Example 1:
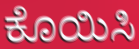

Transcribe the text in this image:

ಕೊಯಿಸಿ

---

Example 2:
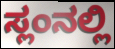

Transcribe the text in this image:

ಸ್ಲಂನಲ್ಲಿ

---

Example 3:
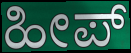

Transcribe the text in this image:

ಹೀಪ್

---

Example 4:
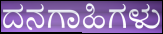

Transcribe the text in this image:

ದನಗಾಹಿಗಳು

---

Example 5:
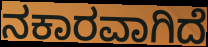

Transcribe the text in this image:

ನಕಾರವಾಗಿದೆ